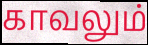
காவலும்